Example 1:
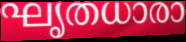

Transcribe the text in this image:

ഘൃതധാരാ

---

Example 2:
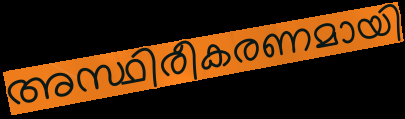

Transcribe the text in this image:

അസ്ഥിരീകരണമായി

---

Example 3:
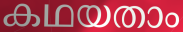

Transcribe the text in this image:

കഥയതാം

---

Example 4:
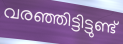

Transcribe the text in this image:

വരഞ്ഞിട്ടിട്ടുണ്ട്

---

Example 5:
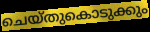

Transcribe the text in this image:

ചെയ്തുകൊടുക്കും